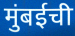
मुंबईची